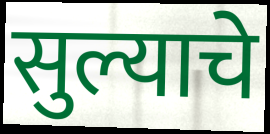
सुल्याचे